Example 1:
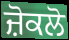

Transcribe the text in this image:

ਜ਼ੋਕਲੋ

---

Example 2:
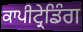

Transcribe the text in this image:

ਕਾਪੀਟ੍ਰੇਡਿੰਗ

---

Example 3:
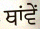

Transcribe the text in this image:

ਥਾਂਵੇਂ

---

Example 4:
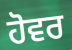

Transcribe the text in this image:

ਹੋਵਰ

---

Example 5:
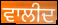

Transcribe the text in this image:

ਵਾਲੀਦ